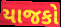
યાજકો